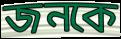
জনকে